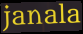
janala